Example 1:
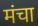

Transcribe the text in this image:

मंचा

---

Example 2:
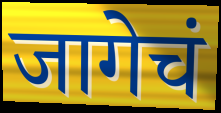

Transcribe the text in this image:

जागेचं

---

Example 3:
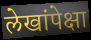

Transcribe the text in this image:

लेखांपेक्षा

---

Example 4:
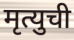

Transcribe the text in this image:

मृत्युची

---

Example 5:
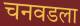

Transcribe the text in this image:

चनवडला